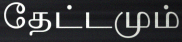
தேட்டமும்